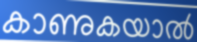
കാണുകയാൽ